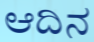
ಆದಿನ